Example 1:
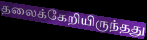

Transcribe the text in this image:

தலைக்கேறியிருந்தது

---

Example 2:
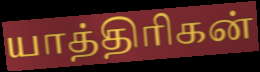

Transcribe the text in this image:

யாத்திரிகன்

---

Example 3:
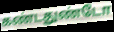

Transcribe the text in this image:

கண்டதுண்டோ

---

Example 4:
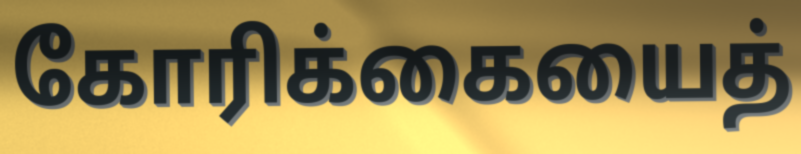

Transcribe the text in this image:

கோரிக்கையைத்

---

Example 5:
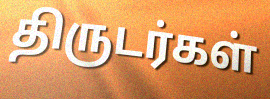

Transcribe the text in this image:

திருடர்கள்